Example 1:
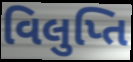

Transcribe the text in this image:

વિલુપ્તિ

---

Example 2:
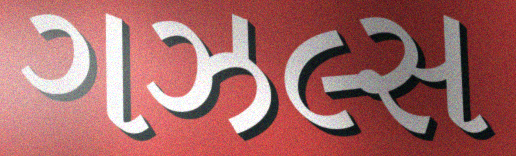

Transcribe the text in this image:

ગઝલ્સ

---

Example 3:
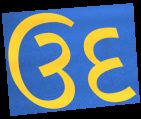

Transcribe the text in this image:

ઉદ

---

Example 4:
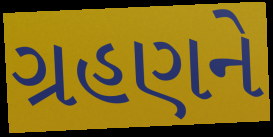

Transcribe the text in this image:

ગ્રહણને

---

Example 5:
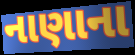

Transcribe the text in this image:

નાણાના